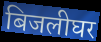
बिजलीघर